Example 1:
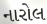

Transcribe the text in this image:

નારોલ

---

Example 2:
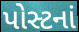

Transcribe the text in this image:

પોસ્ટનાં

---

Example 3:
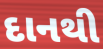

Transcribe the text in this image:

દાનથી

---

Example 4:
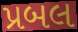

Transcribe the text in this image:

પ્રબલ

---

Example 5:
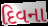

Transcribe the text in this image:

દિવના